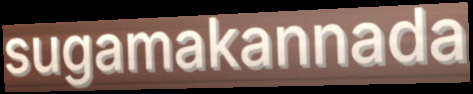
sugamakannada